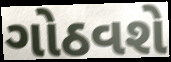
ગોઠવશે